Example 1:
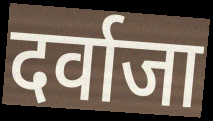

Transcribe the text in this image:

दर्वाजा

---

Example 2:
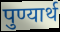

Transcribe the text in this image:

पुण्यार्थ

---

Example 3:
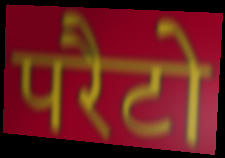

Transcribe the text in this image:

परैटो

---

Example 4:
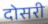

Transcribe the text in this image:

दोसरी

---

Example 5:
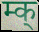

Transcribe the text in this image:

म्क्